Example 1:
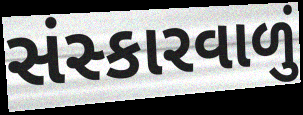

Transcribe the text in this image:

સંસ્કારવાળું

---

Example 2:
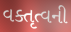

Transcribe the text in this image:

વક્તૃત્વની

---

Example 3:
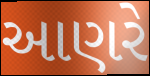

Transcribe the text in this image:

આણરે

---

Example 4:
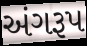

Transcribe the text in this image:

અંગરૂપ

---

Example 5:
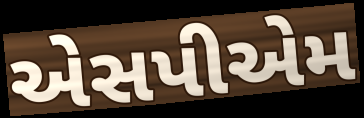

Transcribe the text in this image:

એસપીએમ